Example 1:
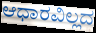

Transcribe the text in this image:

ಆಧಾರವಿಲ್ಲದ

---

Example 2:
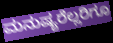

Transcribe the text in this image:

ಮನುಷ್ಯರೆಲ್ಲರಿಗೂ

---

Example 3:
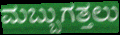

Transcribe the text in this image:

ಮಬ್ಬುಗತ್ತಲು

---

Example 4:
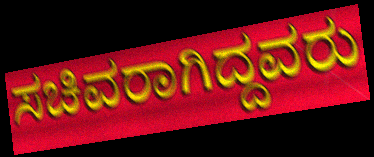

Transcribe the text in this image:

ಸಚಿವರಾಗಿದ್ದವರು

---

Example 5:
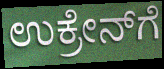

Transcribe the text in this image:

ಉಕ್ರೇನ್‌ಗೆ